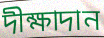
দীক্ষাদান